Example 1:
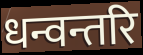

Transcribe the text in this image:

धन्वन्तरि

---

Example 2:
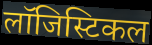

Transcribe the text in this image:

लॉजिस्टिकल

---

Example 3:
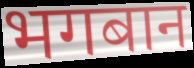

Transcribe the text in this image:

भगबान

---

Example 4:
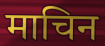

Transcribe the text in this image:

माचिन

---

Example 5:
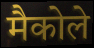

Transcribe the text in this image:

मैकोले